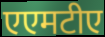
एएमटीए